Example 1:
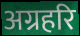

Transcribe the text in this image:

अग्रहरि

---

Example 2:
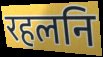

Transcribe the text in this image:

रहलनि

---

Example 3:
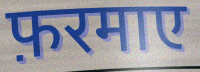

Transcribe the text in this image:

फ़रमाए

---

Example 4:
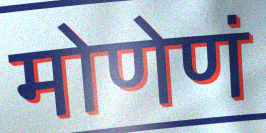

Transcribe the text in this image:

मोणेणं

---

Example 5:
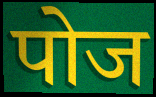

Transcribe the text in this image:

पोज